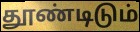
தூண்டிடும்